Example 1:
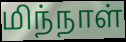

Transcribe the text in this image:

மிந்நாள்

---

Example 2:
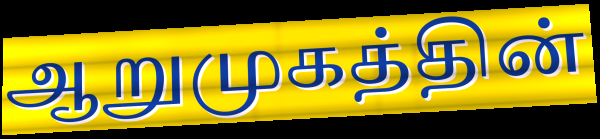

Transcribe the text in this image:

ஆறுமுகத்தின்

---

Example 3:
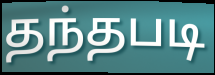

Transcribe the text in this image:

தந்தபடி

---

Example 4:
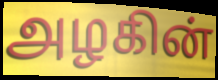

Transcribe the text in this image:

அழகின்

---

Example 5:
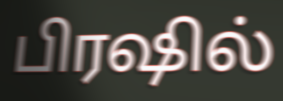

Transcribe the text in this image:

பிரஷில்